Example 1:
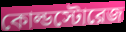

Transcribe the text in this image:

কোল্ডস্টোরেজ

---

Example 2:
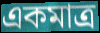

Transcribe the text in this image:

একমাত্র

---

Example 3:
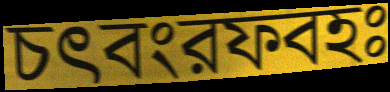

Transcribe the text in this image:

চৎবংরফবহঃ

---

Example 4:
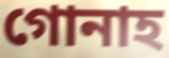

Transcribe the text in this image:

গোনাহ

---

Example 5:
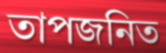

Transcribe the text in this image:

তাপজনিত